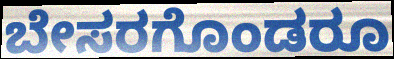
ಬೇಸರಗೊಂಡರೂ